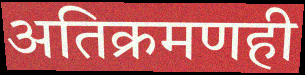
अतिक्रमणही